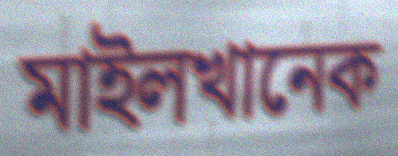
মাইলখানেক